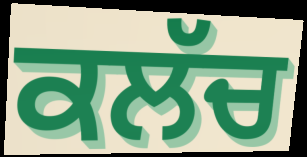
ਕਲੱਚ